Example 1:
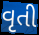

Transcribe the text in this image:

વૃતી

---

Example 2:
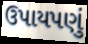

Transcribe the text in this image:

ઉપાયપણું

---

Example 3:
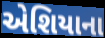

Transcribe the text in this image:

એશિયાના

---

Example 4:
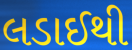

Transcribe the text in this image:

લડાઈથી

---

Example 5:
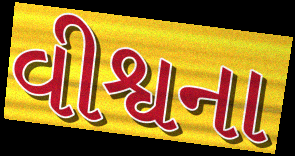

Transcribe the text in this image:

વીશ્વના